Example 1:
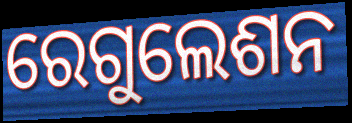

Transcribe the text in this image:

ରେଗୁଲେଶନ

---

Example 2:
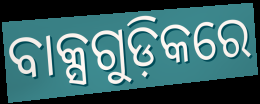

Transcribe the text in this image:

ବାକ୍ସଗୁଡ଼ିକରେ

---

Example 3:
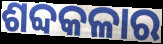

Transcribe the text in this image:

ଶବ୍ଦକଳାର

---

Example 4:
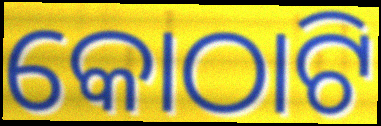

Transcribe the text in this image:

କୋଠାଟି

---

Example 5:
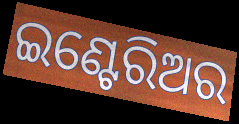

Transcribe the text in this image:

ଇଣ୍ଟେରିଅର